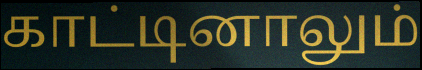
காட்டினாலும்